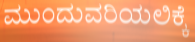
ಮುಂದುವರಿಯಲಿಕ್ಕೆ